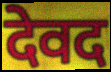
देवद